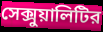
সেক্সুয়ালিটির